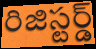
రిజిస్టర్డ్